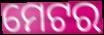
ମେଟର